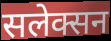
सलेक्सन